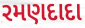
રમણદાદા